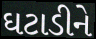
ઘટાડીને